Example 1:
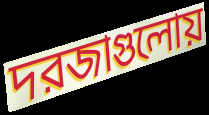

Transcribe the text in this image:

দরজাগুলোয়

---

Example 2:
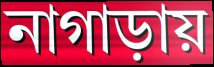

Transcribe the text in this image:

নাগাড়ায়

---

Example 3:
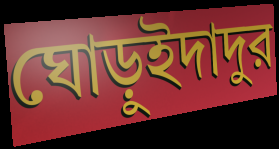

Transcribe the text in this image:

ঘোড়ুইদাদুর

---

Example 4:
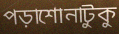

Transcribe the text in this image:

পড়াশোনাটুকু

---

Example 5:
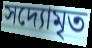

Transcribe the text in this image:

সদ্যোমৃত